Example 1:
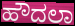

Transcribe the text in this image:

ಹೌದಲಾ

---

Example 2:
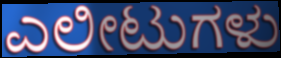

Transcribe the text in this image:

ಎಲೀಟುಗಳು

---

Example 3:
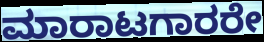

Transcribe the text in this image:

ಮಾರಾಟಗಾರರೇ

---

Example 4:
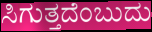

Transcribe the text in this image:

ಸಿಗುತ್ತದೆಂಬುದು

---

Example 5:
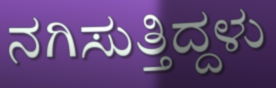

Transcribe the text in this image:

ನಗಿಸುತ್ತಿದ್ದಳು